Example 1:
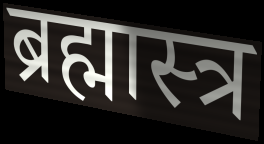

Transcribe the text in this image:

ब्रह्मास्त्र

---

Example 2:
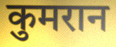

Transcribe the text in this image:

कुमरान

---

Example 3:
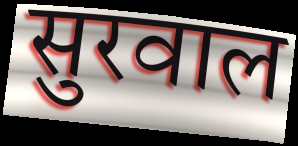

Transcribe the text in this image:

सुरवाल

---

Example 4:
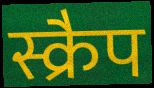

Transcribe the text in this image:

स्क्रैप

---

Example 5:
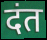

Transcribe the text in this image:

दंत